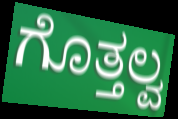
ಗೊತ್ತಲ್ವ